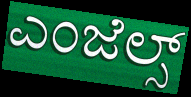
ಎಂಜೆಲ್ಸ್